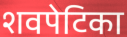
शवपेटिका